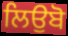
ਲਿਉਬੋ